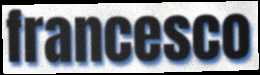
francesco